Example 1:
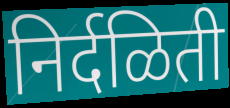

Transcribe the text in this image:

निर्दळिती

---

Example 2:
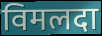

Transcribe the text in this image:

विमलदा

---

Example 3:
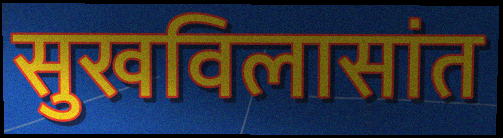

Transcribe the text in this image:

सुखविलासांत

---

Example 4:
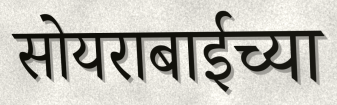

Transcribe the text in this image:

सोयराबाईच्या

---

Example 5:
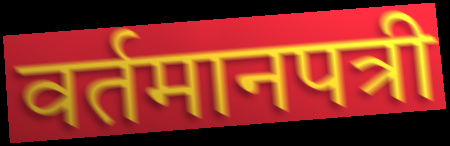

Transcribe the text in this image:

वर्तमानपत्री